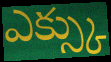
ఎక్స్కు